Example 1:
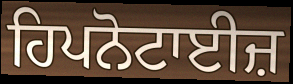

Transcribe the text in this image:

ਹਿਪਨੋਟਾਈਜ਼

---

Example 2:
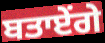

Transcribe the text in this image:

ਬਤਾਏਂਗੇ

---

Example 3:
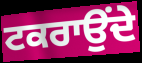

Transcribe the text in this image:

ਟਕਰਾਉਂਦੇ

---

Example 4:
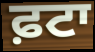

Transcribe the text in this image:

ਫ਼ਟਾ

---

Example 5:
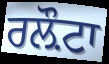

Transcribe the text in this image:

ਰਲ਼ੌਟਾ